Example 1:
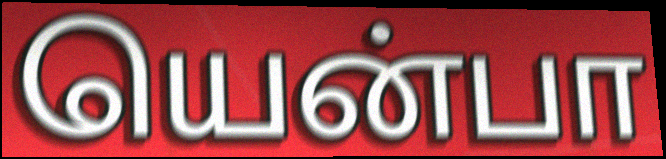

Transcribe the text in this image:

யென்பா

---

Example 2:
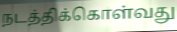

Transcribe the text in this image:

நடத்திக்கொள்வது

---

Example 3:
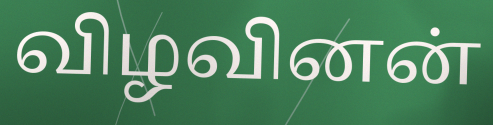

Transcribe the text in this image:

விழவினன்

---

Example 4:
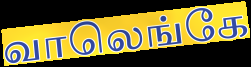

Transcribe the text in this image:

வாலெங்கே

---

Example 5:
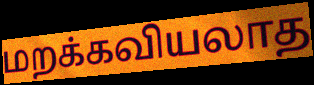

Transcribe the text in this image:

மறக்கவியலாத